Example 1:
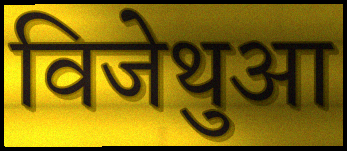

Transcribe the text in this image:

विजेथुआ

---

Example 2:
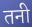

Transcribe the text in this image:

तनी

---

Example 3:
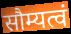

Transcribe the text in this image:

सौम्यत्वं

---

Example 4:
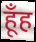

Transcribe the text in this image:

हूँह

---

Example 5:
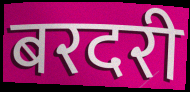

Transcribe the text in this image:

बरदरी